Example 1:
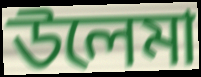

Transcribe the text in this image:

উলেমা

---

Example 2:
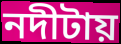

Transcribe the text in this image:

নদীটায়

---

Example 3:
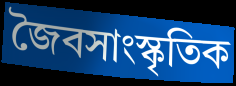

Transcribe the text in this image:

জৈবসাংস্কৃতিক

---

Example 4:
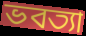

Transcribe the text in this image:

ভবত্যা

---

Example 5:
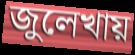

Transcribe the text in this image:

জুলেখায়